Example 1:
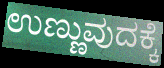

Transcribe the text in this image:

ಉಣ್ಣುವುದಕ್ಕೆ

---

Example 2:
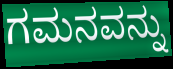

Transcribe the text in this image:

ಗಮನವನ್ನು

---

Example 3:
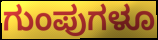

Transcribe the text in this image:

ಗುಂಪುಗಳೂ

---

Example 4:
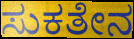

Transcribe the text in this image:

ಸುಕತೇನ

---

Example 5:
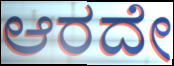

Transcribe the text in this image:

ಆರದೇ